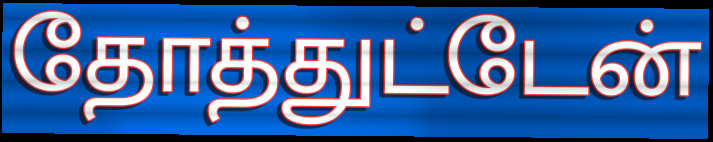
தோத்துட்டேன்